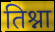
तिश्ना